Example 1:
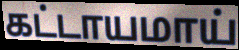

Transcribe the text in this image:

கட்டாயமாய்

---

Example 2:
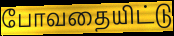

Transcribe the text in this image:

போவதையிட்டு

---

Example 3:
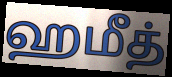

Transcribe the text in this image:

ஹமீத்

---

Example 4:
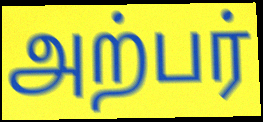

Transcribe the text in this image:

அற்பர்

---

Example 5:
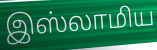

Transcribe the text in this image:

இஸ்லாமிய